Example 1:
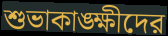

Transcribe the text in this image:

শুভাকাঙ্ক্ষীদের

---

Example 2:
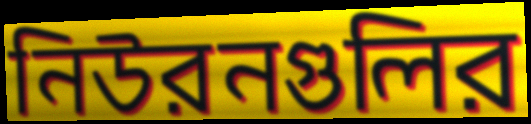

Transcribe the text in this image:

নিউরনগুলির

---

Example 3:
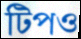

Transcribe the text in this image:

টিপও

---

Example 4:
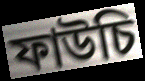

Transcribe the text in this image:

ফাউচি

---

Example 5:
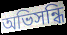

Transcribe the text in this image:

অভিসন্ধি